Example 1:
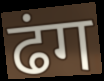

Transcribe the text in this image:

ढंग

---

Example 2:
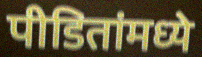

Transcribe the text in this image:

पीडितांमध्ये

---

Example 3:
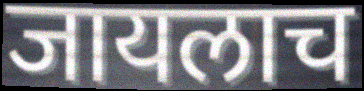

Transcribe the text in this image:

जायलाच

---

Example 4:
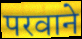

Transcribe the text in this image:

परवाने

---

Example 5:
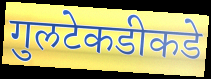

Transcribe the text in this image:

गुलटेकडीकडे